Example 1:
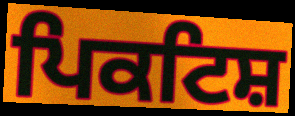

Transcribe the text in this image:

ਪਿਕਟਿਸ਼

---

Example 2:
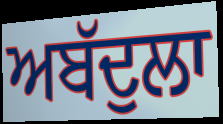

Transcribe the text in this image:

ਅਬੱਦੁਲਾ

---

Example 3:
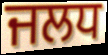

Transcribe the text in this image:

ਜਲਧ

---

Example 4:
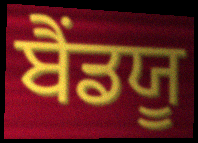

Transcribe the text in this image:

ਬੈਂਡਯੂ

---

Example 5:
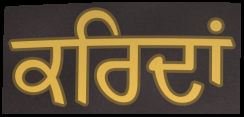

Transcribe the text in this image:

ਕਰਿਦਾਂ